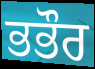
ਭਭੌਰ